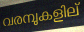
വരമ്പുകളില്